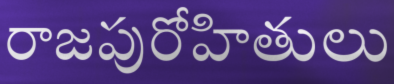
రాజపురోహితులు